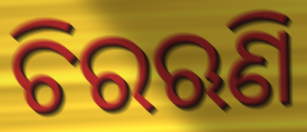
ଚିରଋଣି